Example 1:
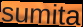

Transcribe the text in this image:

sumita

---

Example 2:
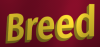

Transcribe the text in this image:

Breed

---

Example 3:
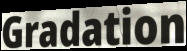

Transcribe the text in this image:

Gradation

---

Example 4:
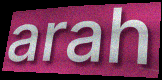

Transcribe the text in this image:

arah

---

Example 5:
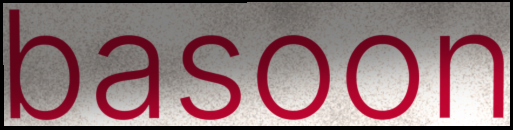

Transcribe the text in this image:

basoon